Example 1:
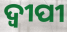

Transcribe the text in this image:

ଦ୍ଵୀପୀ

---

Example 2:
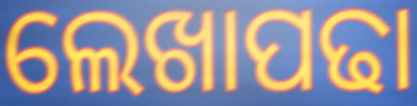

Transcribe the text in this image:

ଲେଖାପଢା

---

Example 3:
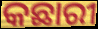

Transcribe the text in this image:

କଛାରୀ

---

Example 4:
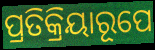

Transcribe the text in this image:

ପ୍ରତିକ୍ରିୟାରୂପେ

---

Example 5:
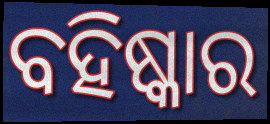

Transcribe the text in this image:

ବହିଷ୍କାର